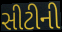
સીટીની